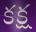
కక్ష